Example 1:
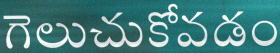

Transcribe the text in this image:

గెలుచుకోవడం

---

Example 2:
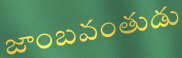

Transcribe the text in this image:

జాంబవంతుడు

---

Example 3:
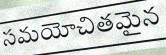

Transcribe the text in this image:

సమయోచితమైన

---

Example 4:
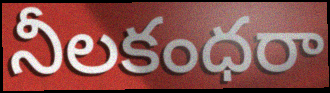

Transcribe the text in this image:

నీలకంధరా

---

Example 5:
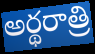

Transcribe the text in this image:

అర్థరాత్రి